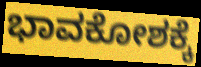
ಭಾವಕೋಶಕ್ಕೆ